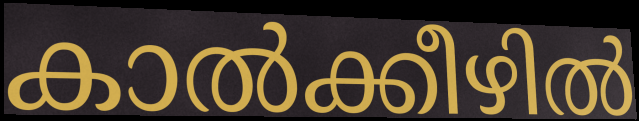
കാൽക്കീഴിൽ